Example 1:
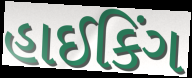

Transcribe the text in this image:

હાઈકિંગ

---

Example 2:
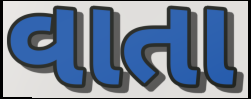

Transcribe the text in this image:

વાતા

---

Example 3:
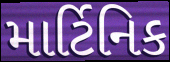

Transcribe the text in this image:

માર્ટિનિક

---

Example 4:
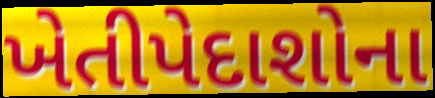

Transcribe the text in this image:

ખેતીપેદાશોના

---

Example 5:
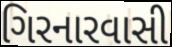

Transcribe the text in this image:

ગિરનારવાસી